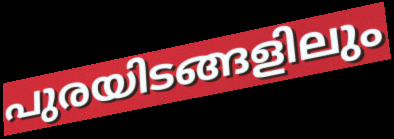
പുരയിടങ്ങളിലും